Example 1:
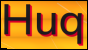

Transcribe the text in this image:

Huq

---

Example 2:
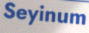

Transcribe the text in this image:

Seyinum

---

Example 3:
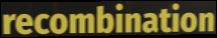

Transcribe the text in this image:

recombination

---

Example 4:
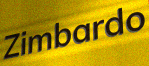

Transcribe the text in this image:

Zimbardo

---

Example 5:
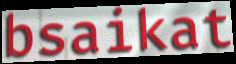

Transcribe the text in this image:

bsaikat